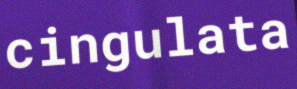
cingulata